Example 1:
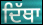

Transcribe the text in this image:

ਦਿੱਥਾ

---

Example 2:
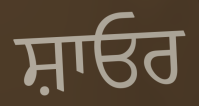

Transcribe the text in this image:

ਸ਼ਾਓਰ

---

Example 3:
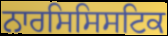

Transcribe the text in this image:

ਨਾਰਸਿਸਿਸਟਿਕ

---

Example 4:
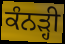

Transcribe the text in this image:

ਕੰਨੜ੍ਹੀ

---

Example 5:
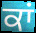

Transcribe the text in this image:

ਕਾਂ